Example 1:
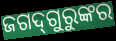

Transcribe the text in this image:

ଜଗଦ୍‌ଗୁରୁଙ୍କର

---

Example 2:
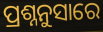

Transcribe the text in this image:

ପ୍ରଶ୍ନନୁସାରେ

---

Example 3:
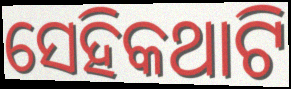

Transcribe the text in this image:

ସେହିକଥାଟି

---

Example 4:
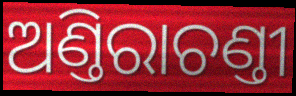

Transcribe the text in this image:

ଅଣ୍ତିରାଚଣ୍ତୀ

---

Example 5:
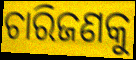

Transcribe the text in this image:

ଚାରିଜଣକୁ